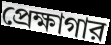
প্রেক্ষাগার